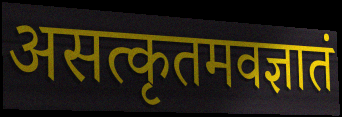
असत्कृतमवज्ञातं